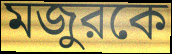
মজুরকে